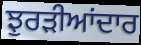
ਝੁਰੜੀਆਂਦਾਰ